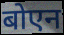
बोएन